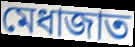
মেধাজাত